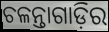
ଚଳନ୍ତାଗାଡ଼ିର